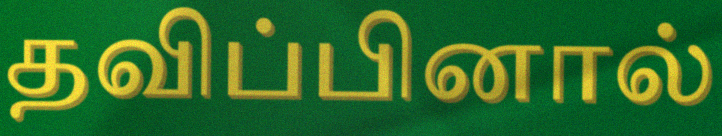
தவிப்பினால்